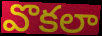
వొకలా